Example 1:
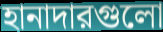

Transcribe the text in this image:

হানাদারগুলো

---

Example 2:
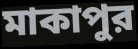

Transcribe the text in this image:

মাকাপুর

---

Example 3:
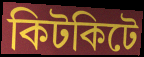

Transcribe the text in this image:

কিটকিটে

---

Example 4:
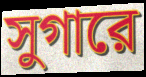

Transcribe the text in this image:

সুগারে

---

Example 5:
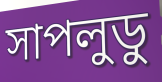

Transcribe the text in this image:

সাপলুডু